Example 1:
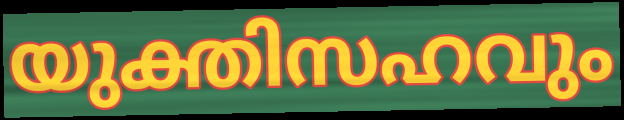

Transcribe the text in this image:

യുക്തിസഹവും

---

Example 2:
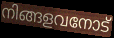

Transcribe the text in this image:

നിങ്ങളവനോട്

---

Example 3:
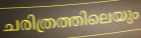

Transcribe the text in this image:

ചരിത്രത്തിലെയും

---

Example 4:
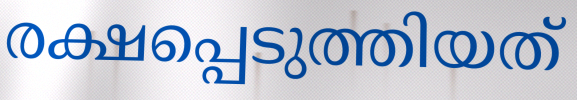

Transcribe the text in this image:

രക്ഷപ്പെടുത്തിയത്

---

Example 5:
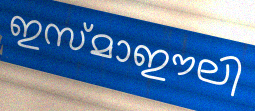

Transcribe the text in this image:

ഇസ്മാഈലി